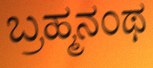
ಬ್ರಹ್ಮನಂಥ